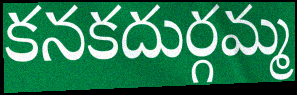
కనకదుర్గమ్మ